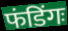
फंडिंगः